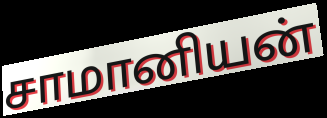
சாமானியன்